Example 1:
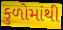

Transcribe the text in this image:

કુળોમાંથી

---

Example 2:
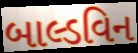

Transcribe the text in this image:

બાલ્ડવિન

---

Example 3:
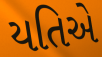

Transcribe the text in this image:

યતિએ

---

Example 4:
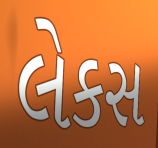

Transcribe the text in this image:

લેકસ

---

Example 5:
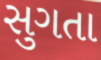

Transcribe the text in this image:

સુગતા